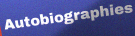
Autobiographies